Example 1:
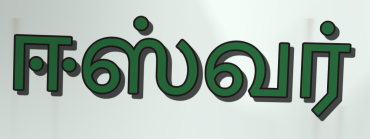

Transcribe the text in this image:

ஈஸ்வர்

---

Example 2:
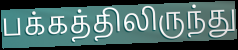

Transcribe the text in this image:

பக்கத்திலிருந்து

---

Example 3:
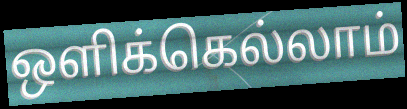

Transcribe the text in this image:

ஒளிக்கெல்லாம்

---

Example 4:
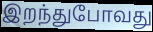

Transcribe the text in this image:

இறந்துபோவது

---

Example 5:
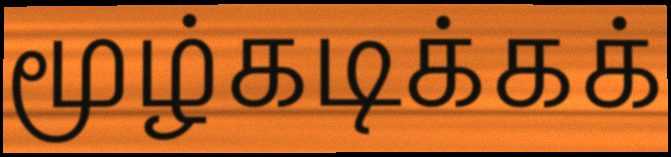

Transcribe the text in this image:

மூழ்கடிக்கக்